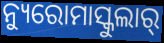
ନ୍ୟୁରୋମାସ୍କୁଲାର୍